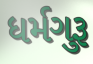
ધર્મગુરૂ